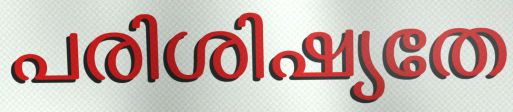
പരിശിഷ്യതേ